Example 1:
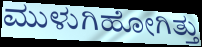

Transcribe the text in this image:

ಮುಳುಗಿಹೋಗಿತ್ತು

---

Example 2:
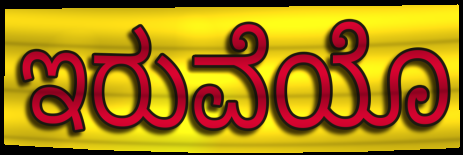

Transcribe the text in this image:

ಇರುವೆಯೊ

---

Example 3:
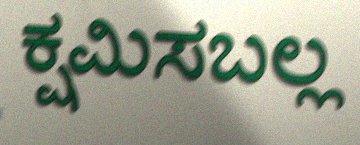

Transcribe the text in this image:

ಕ್ಷಮಿಸಬಲ್ಲ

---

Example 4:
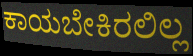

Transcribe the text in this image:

ಕಾಯಬೇಕಿರಲಿಲ್ಲ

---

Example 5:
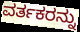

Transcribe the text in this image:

ವರ್ತಕರನ್ನು